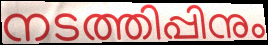
നടത്തിപ്പിനും